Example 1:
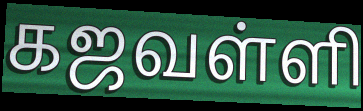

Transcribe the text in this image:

கஜவள்ளி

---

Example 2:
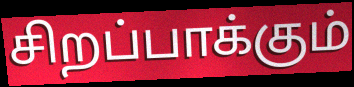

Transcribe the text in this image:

சிறப்பாக்கும்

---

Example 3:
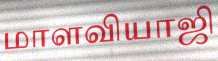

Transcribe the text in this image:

மாளவியாஜி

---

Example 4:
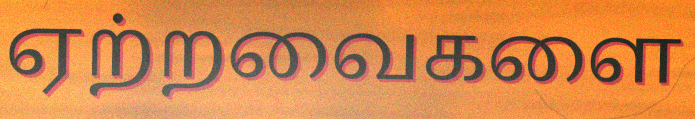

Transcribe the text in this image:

ஏற்றவைகளை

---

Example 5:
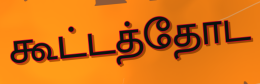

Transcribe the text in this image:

கூட்டத்தோட